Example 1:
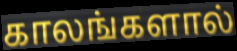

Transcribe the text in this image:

காலங்களால்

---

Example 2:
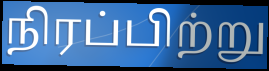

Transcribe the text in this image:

நிரப்பிற்று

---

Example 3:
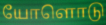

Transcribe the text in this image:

யோளொடு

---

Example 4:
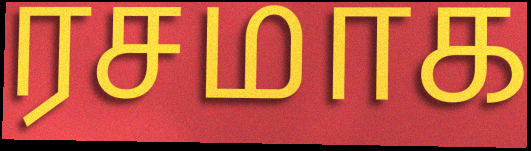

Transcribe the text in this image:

ரசமாக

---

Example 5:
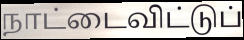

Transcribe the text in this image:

நாட்டைவிட்டுப்